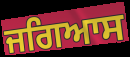
ਜਗਿਆਸ